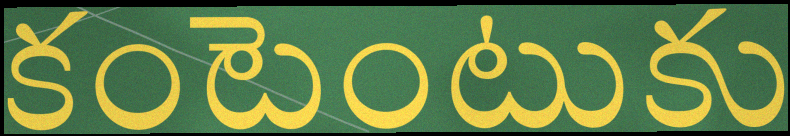
కంటెంటుకు